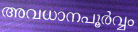
അവധാനപൂർവ്വം